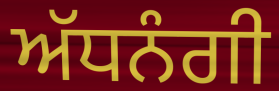
ਅੱਧਨੰਗੀ